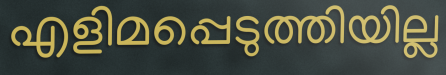
എളിമപ്പെടുത്തിയില്ല